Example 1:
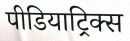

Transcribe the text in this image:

पीडियाट्रिक्स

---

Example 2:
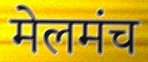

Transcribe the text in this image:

मेलमंच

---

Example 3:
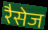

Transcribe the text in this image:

रैसेज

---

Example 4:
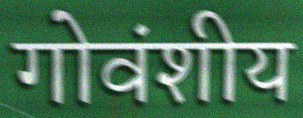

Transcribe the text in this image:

गोवंशीय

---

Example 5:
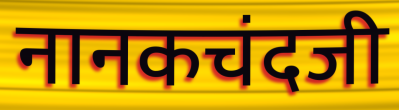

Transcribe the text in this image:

नानकचंदजी